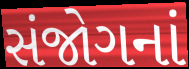
સંજોગનાં